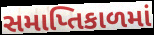
સમાપ્તિકાળમાં